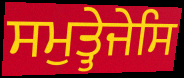
ਸਮੁਤ੍ਤੇਜੇਸਿ